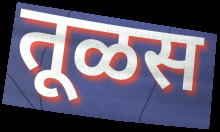
तूळस